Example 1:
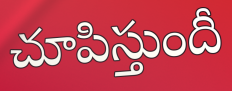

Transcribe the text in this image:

చూపిస్తుందీ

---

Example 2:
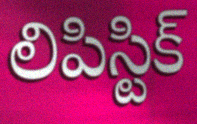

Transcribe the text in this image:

లిపిస్టిక్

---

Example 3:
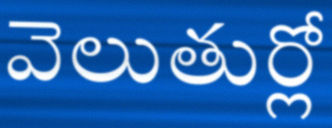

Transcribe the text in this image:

వెలుతుర్లో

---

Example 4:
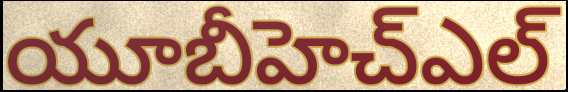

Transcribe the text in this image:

యూబీహెచ్ఎల్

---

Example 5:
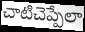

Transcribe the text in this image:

చాటిచెప్పేలా